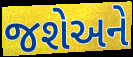
જશેઅને